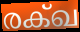
രക്ഖ